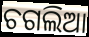
ଚଗଲିଆ